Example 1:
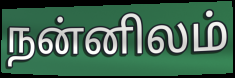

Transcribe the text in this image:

நன்னிலம்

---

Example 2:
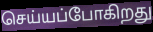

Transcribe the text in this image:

செய்யப்போகிறது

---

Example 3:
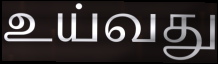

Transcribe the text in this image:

உய்வது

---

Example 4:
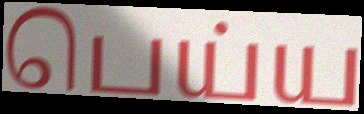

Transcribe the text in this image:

பெய்ய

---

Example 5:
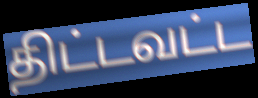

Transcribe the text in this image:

திட்டவட்ட